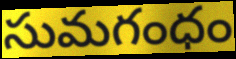
సుమగంధం